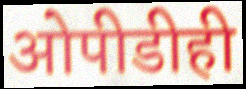
ओपीडीही